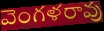
వెంగళరావు